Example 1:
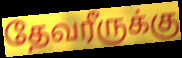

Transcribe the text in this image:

தேவரீருக்கு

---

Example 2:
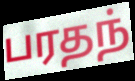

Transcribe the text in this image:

பரதந்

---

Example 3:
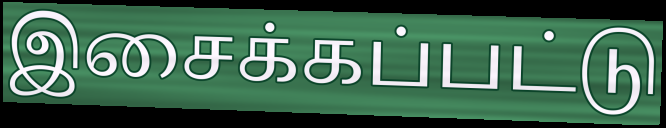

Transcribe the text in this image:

இசைக்கப்பட்டு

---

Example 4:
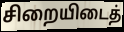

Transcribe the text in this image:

சிறையிடைத்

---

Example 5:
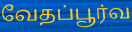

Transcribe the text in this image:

வேதப்பூர்வ